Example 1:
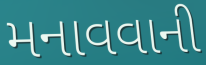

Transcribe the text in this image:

મનાવવાની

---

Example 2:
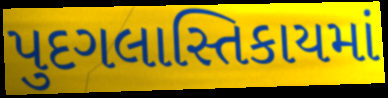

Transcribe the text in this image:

પુદગલાસ્તિકાયમાં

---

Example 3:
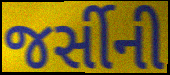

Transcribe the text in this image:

જર્સીની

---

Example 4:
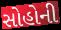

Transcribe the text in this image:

સોહોની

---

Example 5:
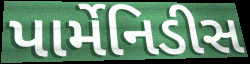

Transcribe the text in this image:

પાર્મેનિડીસ